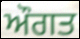
ਔਗਤ